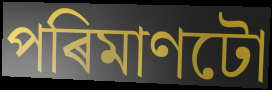
পৰিমাণটো